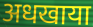
अधखाया